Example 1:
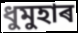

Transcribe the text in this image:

ধুমুহাৰ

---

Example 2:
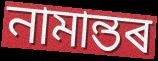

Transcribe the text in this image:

নামান্তৰ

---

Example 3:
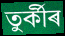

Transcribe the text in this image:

তুৰ্কীৰ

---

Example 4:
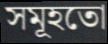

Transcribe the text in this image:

সমূহতো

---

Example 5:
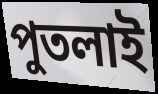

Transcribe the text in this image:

পুতলাই